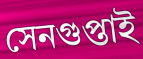
সেনগুপ্তাই